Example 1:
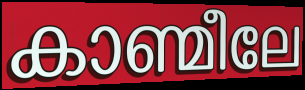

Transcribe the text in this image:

കാണ്മീലേ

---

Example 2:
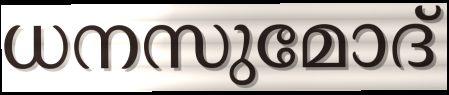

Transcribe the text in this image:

ധനസുമോദ്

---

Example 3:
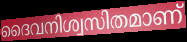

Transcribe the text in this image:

ദൈവനിശ്വസിതമാണ്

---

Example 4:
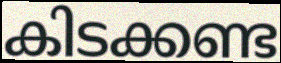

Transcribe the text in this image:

കിടക്കണ്ട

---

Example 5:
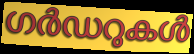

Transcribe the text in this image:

ഗർഡറുകൾ